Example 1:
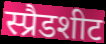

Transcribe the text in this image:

स्प्रैडशीट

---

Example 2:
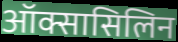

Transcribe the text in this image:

ऑक्सासिलिन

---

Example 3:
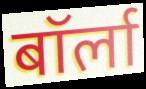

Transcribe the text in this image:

बॉर्ला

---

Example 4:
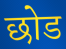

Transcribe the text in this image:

छोड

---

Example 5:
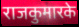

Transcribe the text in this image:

राजकुमारके